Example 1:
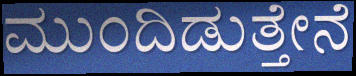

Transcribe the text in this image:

ಮುಂದಿಡುತ್ತೇನೆ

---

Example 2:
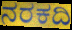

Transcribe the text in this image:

ನರಕದಿ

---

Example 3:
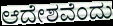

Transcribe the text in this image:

ಆದೇಶವೆಂದು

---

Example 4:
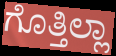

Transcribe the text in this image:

ಗೊತ್ತಿಲ್ಲಾ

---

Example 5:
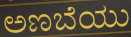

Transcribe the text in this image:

ಅಣಬೆಯು